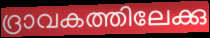
ദ്രാവകത്തിലേക്കു